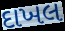
દાખલ